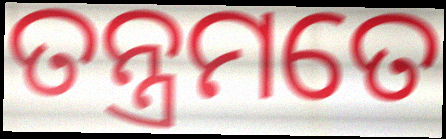
ତନ୍ତ୍ରମତେ